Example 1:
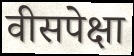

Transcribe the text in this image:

वीसपेक्षा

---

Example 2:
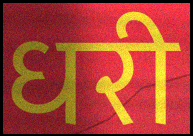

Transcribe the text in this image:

धरी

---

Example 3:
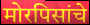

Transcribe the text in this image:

मोरपिसांचे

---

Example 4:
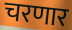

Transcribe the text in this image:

चरणार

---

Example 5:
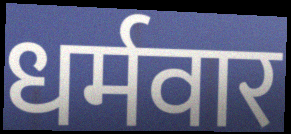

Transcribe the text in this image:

धर्मवार